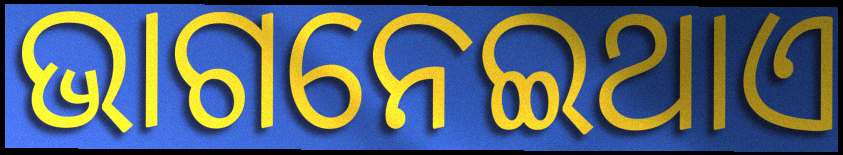
ଭାଗନେଇଥାଏ